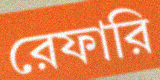
রেফারি